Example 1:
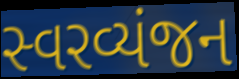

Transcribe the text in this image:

સ્વરવ્યંજન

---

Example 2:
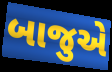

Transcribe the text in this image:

બાજુએ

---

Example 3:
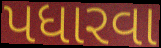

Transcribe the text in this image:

પધારવા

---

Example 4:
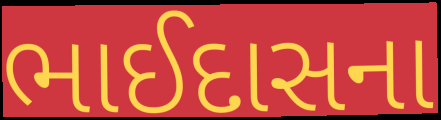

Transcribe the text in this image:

ભાઈદાસના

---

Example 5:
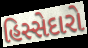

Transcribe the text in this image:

હિસ્સેદારો